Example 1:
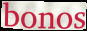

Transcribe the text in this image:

bonos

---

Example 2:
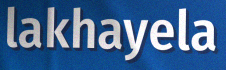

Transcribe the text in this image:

lakhayela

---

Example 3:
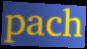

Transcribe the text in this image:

pach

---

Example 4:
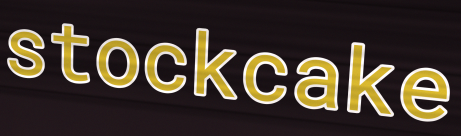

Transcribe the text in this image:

stockcake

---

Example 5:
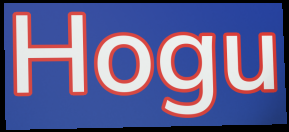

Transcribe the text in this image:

Hogu